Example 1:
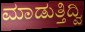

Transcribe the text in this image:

ಮಾಡುತ್ತಿದ್ವಿ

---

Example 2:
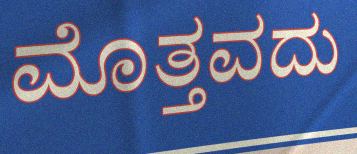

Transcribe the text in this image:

ಮೊತ್ತವದು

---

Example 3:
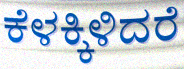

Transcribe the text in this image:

ಕೆಳಕ್ಕಿಳಿದರೆ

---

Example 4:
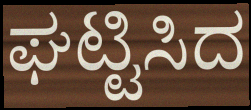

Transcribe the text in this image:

ಘಟ್ಟಿಸಿದ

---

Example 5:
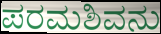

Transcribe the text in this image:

ಪರಮಶಿವನು